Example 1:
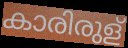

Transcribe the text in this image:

കാരിരുള്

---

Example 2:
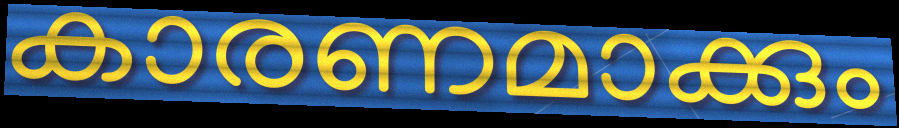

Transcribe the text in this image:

കാരണമാക്കും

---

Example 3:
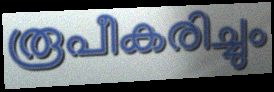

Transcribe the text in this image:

രൂപീകരിച്ചും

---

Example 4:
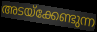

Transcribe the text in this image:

അടയ്ക്കേണ്ടുന്ന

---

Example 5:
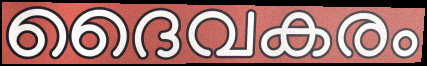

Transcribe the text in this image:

ദൈവകരം